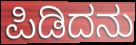
ಪಿಡಿದನು